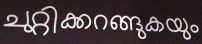
ചുറ്റിക്കറങ്ങുകയും